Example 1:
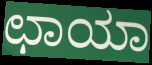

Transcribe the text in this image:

ಛಾಯಾ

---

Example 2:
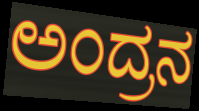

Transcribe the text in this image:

ಅಂದ್ರನ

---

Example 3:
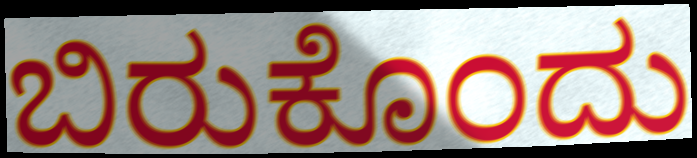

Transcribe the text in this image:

ಬಿರುಕೊಂದು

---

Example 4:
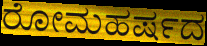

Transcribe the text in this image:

ರೋಮಹರ್ಷದ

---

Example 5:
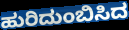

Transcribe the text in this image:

ಹುರಿದುಂಬಿಸಿದ